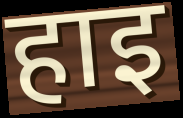
हाइ